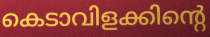
കെടാവിളക്കിന്റെ